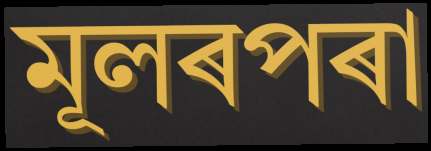
মূলৰপৰা